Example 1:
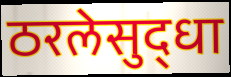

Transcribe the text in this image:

ठरलेसुद्धा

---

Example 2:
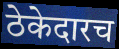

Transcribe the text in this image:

ठेकेदारच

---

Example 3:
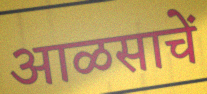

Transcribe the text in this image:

आळसाचें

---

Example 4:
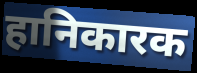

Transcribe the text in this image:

हानिकारक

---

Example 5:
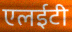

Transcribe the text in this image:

एलईटी